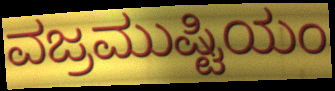
ವಜ್ರಮುಷ್ಟಿಯಂ